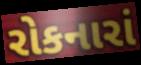
રોકનારાં